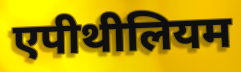
एपीथीलियम